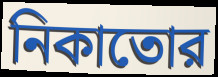
নিকাতোর